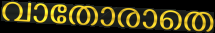
വാതോരാതെ